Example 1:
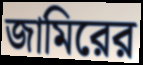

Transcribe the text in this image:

জামিরের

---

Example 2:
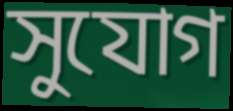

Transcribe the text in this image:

সুযোগ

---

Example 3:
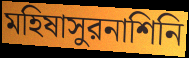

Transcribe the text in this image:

মহিষাসুরনাশিনি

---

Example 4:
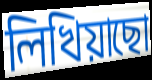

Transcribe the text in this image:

লিখিয়াছো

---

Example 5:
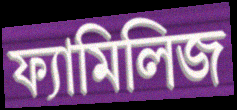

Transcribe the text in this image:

ফ্যামিলিজ